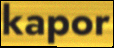
kapor